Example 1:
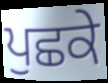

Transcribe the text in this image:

ਪੁਛਕੇ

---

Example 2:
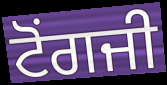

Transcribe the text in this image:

ਟੋਂਗਜੀ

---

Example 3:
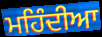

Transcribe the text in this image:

ਮਹਿੰਦੀਆ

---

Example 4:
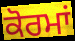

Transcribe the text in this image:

ਕੋਰਮਾਂ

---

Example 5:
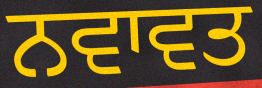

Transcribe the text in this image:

ਨਵਾਵਤ